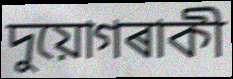
দুয়োগৰাকী